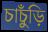
চাচুঁড়ি